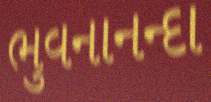
ભુવનાનન્દા